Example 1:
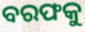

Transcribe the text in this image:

ବରଫକୁ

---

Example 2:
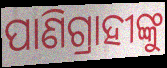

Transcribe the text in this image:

ପାଣିଗ୍ରାହୀଙ୍କୁ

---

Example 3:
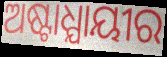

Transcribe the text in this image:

ଅଷ୍ଟାଧ୍ଯାୟୀର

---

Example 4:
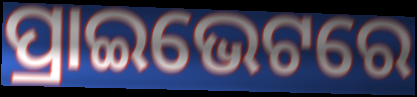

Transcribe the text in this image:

ପ୍ରାଇଭେଟରେ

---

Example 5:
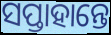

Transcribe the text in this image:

ସପ୍ତାହାନ୍ତେ